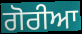
ਗੋਰੀਆ